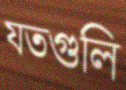
যতগুলি